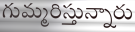
గుమ్మరిస్తున్నారు